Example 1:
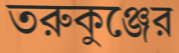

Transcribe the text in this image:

তরুকুঞ্জের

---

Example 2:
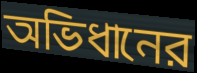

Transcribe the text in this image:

অভিধানের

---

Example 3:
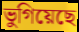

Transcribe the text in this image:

ভুগিয়েছে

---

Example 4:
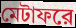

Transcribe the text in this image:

মেটাফরে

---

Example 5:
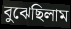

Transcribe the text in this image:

বুঝেছিলাম